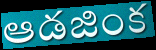
ఆడజింక